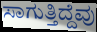
ಸಾಗುತ್ತಿದ್ದೆವು